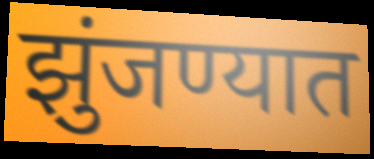
झुंजण्यात